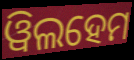
ୱିଲହେମ